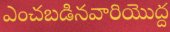
ఎంచబడినవారియొద్ద